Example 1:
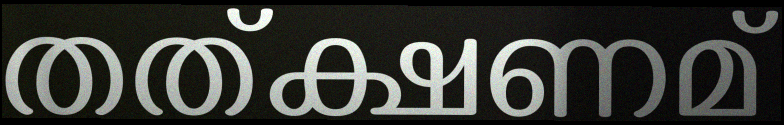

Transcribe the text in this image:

തത്ക്ഷണമ്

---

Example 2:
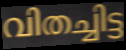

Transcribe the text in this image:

വിതച്ചിട്ട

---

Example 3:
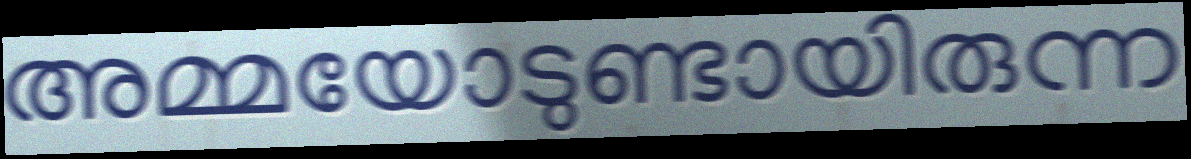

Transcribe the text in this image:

അമ്മയോടുണ്ടായിരുന്ന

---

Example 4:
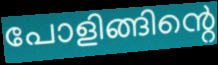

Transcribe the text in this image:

പോളിങ്ങിന്റെ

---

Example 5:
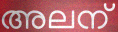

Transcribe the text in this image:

അലന്